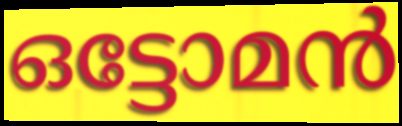
ഒട്ടോമൻ